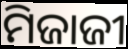
ମିଜାଜୀ